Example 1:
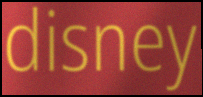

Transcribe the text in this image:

disney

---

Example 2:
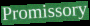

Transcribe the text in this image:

Promissory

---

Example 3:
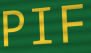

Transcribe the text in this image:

PIF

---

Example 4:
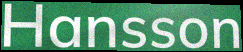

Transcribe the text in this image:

Hansson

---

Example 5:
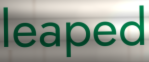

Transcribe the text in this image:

leaped